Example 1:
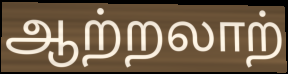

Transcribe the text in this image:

ஆற்றலாற்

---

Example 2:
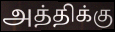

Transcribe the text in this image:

அத்திக்கு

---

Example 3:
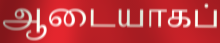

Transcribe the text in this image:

ஆடையாகப்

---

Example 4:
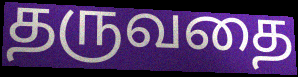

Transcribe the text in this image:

தருவதை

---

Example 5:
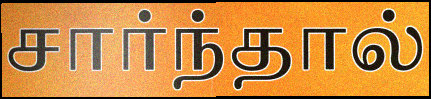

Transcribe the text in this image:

சார்ந்தால்